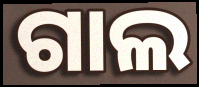
ଗାଲ